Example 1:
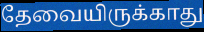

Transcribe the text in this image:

தேவையிருக்காது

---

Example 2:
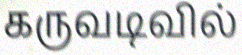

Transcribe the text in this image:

கருவடிவில்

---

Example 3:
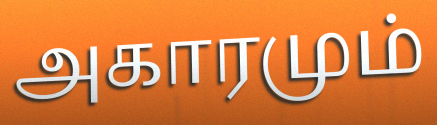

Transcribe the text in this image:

அகாரமும்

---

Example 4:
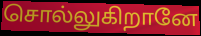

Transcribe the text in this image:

சொல்லுகிறானே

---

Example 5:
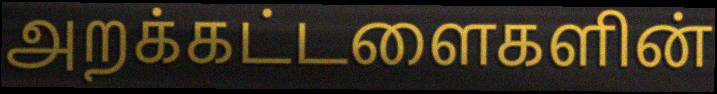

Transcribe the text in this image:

அறக்கட்டளைகளின்